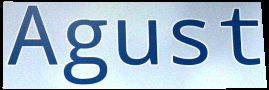
Agust